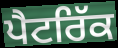
ਪੈਟਰਿੱਕ